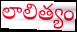
లాలిత్యం